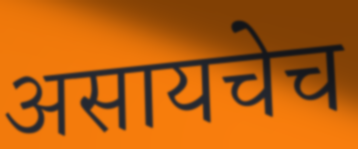
असायचेच